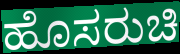
ಹೊಸರುಚಿ